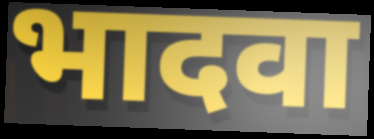
भादवा